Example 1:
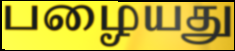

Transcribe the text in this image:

பழையது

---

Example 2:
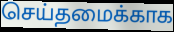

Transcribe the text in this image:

செய்தமைக்காக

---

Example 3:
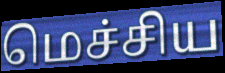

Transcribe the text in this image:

மெச்சிய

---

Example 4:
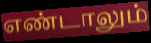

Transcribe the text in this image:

எண்டாலும்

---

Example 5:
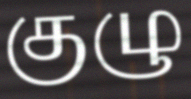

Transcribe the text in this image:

குழு